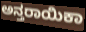
ಅನ್ತರಾಯಿಕಾ